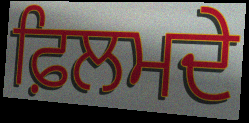
ਫ਼ਿਲਮਦੇ